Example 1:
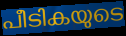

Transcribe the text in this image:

പീടികയുടെ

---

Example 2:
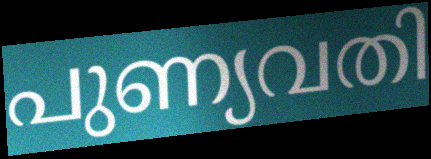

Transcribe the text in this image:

പുണ്യവതി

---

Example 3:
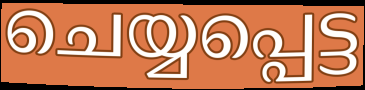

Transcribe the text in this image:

ചെയ്യപ്പെട്ട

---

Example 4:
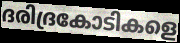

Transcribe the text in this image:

ദരിദ്രകോടികളെ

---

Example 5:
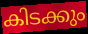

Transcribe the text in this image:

കിടക്കും